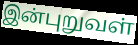
இன்புறுவள்